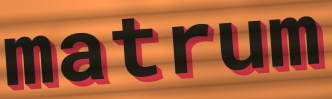
matrum